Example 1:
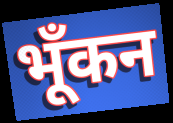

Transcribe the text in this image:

भूँकन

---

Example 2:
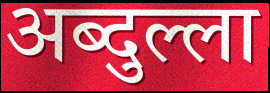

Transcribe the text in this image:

अब्दुल्ला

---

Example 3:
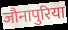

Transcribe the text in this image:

जौनापुरिया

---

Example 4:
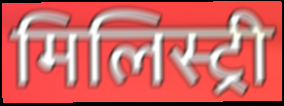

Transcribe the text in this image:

मिलिस्ट्री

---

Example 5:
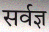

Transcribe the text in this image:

सर्वज्ञ